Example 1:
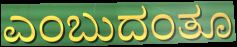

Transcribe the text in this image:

ಎಂಬುದಂತೂ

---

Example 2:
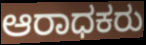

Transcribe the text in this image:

ಆರಾಧಕರು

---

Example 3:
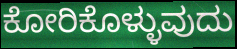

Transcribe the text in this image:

ಕೋರಿಕೊಳ್ಳುವುದು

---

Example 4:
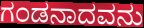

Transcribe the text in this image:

ಗಂಡನಾದವನು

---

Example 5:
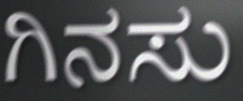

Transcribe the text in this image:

ಗಿನಸು